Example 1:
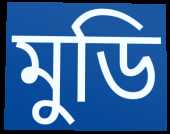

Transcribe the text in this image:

মুডি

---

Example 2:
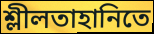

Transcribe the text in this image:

শ্লীলতাহানিতে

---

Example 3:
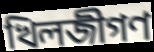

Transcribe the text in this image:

খিলজীগণ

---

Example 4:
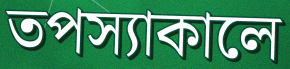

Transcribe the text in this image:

তপস্যাকালে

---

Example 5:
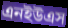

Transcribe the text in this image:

এনইউএস